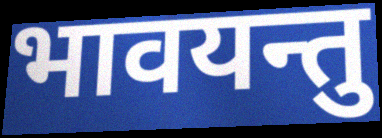
भावयन्तु